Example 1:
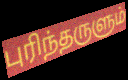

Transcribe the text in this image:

புரிந்தருளும்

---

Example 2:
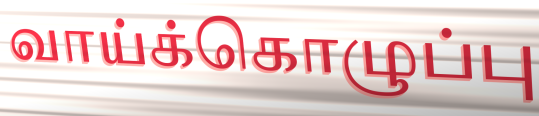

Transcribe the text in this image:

வாய்க்கொழுப்பு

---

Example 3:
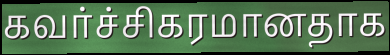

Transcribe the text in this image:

கவர்ச்சிகரமானதாக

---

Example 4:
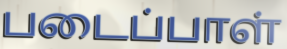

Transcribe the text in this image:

படைப்பாள்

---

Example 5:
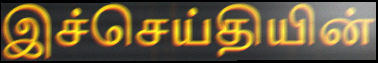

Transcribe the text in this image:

இச்செய்தியின்